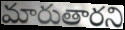
మారుతారని